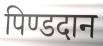
पिण्डदान